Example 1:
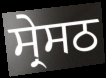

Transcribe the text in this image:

ਸ੍ਰੇਸਠ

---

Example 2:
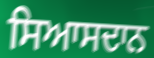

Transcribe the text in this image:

ਸਿਆਸਦਾਨ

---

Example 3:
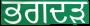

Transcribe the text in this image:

ਭਗਦੜ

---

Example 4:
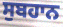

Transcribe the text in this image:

ਸੁਬਹਾਨ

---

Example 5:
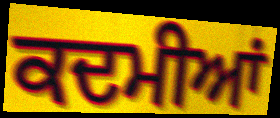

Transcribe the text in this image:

ਕਦਮੀਆਂ